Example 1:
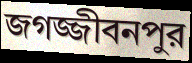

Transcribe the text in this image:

জগজ্জীবনপুর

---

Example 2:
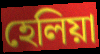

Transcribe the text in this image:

হেলিয়া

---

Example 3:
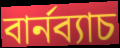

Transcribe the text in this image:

বার্নব্যাচ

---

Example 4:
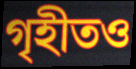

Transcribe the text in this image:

গৃহীতও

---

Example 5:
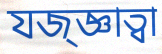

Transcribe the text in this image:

যজ্জ্ঞাত্বা